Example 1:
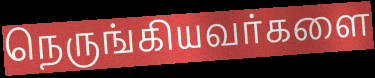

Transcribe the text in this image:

நெருங்கியவர்களை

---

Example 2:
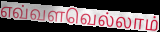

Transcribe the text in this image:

எவ்வளவெல்லாம்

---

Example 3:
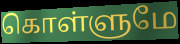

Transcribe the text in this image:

கொள்ளுமே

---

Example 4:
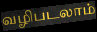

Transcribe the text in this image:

வழிபடலாம்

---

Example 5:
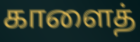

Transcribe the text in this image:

காளைத்